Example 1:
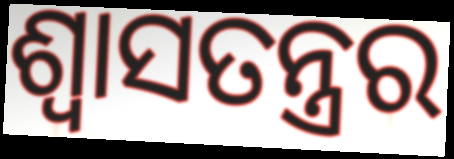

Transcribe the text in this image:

ଶ୍ଵାସତନ୍ତ୍ରର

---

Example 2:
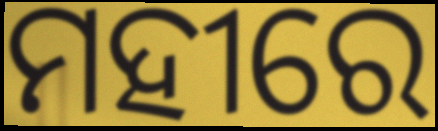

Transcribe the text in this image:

ମହୀରେ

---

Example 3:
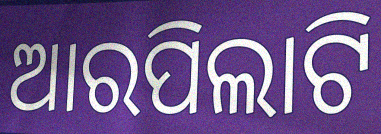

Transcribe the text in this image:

ଆରପିଲାଟି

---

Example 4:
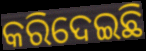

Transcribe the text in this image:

କରିଦେଇଛି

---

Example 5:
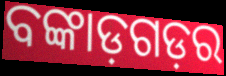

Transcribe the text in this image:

ବଙ୍କାଡ଼ଗଡ଼ର